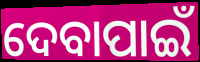
ଦେବାପାଇଁ